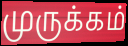
முருக்கம்